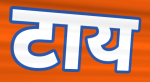
टाय